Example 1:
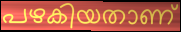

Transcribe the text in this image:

പഴകിയതാണ്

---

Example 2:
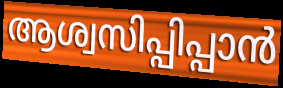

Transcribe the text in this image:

ആശ്വസിപ്പിപ്പാൻ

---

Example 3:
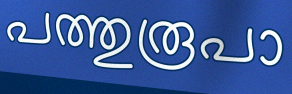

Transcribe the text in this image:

പത്തുരൂപാ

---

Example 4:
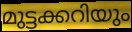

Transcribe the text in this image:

മുട്ടക്കറിയും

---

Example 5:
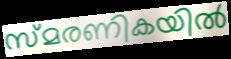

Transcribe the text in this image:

സ്മരണികയിൽ